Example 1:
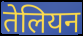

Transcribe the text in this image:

तेलियन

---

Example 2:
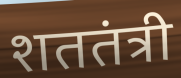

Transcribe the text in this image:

शततंत्री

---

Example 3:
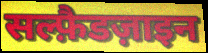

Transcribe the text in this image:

सल्फ़ैडज़ाइन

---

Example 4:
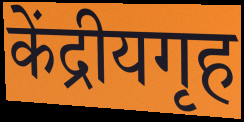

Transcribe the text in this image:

केंद्रीयगृह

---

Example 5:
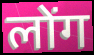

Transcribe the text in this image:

लोंग